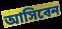
আসিবেন